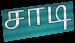
சாடி